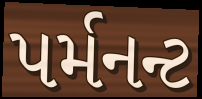
પર્મનન્ટ